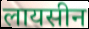
लायसीन